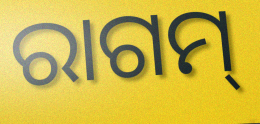
ରାଗମ୍